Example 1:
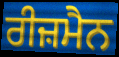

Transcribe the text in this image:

ਰੀਜ਼ਮੈਨ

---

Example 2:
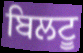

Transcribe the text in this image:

ਬਿਲਟੂ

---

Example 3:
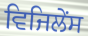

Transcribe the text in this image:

ਵਿਜਿਲੇਂਸ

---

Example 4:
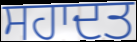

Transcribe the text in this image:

ਸਹਾਦਤ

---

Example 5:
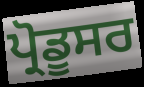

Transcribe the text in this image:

ਪ੍ਰੋਡੂਸਰ